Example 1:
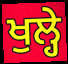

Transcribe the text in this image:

ਖੁਲ੍ਹੇ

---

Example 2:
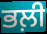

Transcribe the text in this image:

ਭਲ਼ੀ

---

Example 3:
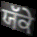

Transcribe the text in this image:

ਯੱਕੇ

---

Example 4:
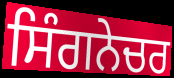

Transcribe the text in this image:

ਸਿੰਗਨੇਚਰ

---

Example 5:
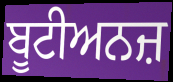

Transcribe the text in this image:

ਬੂਟੀਅਨਜ਼